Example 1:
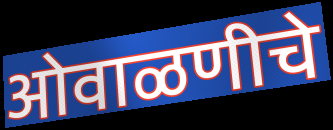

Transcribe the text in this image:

ओवाळणीचे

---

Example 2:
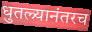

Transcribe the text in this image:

धुतल्यानंतरच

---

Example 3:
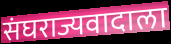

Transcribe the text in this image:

संघराज्यवादाला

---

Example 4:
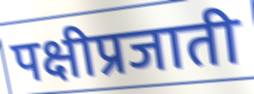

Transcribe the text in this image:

पक्षीप्रजाती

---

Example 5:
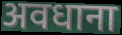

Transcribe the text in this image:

अवधाना